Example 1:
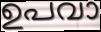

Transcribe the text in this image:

ഉപവാ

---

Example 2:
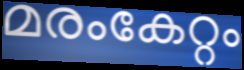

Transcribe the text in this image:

മരംകേറ്റം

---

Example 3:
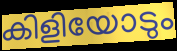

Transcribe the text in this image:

കിളിയോടും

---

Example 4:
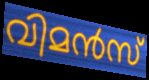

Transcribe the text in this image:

വിമൻസ്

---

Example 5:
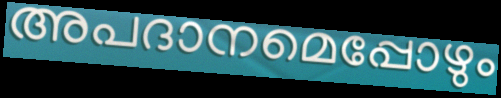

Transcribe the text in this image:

അപദാനമെപ്പോഴും